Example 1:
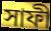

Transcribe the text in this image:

সাফী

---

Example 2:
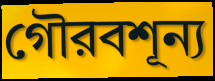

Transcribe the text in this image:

গৌরবশূন্য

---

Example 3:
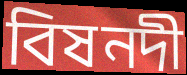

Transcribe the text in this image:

বিষনদী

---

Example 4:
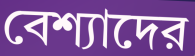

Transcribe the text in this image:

বেশ্যাদের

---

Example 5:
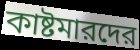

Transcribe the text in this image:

কাষ্টমারদের